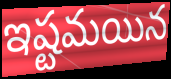
ఇష్టమయిన